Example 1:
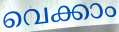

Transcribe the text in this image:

വെക്കാം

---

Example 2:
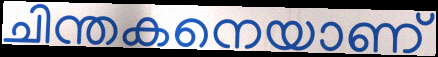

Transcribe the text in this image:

ചിന്തകനെയാണ്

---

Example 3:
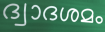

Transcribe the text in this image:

ദ്വാദശമം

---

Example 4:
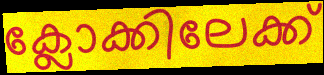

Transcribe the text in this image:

ക്ലോക്കിലേക്ക്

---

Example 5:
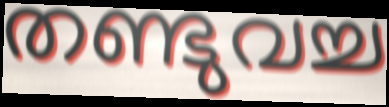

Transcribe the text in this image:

തണ്ടുവച്ച